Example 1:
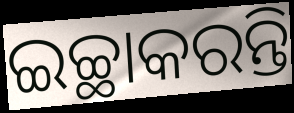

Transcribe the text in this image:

ଇଚ୍ଛାକରନ୍ତି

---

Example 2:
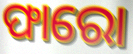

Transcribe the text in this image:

ଫାରୋ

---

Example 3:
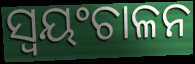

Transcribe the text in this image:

ସ୍ବୟଂଚାଳନ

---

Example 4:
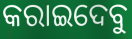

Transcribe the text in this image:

କରାଇଦେବୁ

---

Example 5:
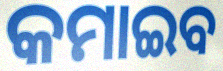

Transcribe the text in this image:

କମାଇବ